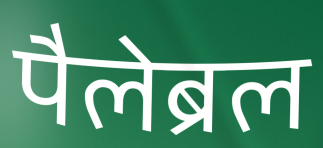
पैलेब्रल